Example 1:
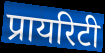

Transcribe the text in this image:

प्रायरिटी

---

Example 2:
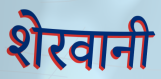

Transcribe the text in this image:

शेरवानी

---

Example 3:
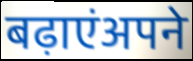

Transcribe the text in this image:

बढ़ाएंअपने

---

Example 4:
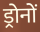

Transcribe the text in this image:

ड्रोनों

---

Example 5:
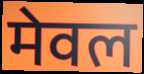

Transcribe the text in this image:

मेवल